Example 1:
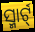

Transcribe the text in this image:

ସ୍ମାର୍ଟ୍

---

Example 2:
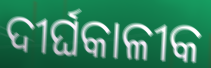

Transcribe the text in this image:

ଦୀର୍ଘକାଳୀକ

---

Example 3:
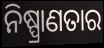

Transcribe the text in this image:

ନିଷ୍ପ୍ରାଣତାର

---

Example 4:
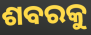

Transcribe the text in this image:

ଶବରକୁ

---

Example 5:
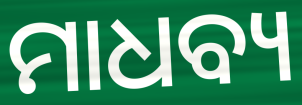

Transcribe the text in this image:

ମାଧବ୍ୟ